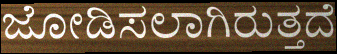
ಜೋಡಿಸಲಾಗಿರುತ್ತದೆ